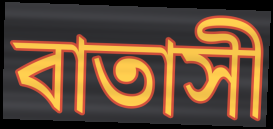
বাতাসী